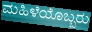
ಮಹಿಳೆಯೊಬ್ಬರು